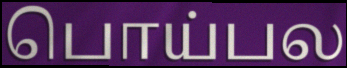
பொய்பல